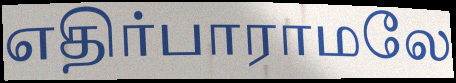
எதிர்பாராமலே